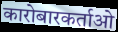
कारोबारकर्ताओ